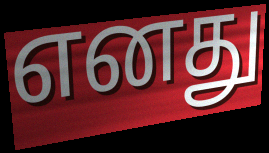
எனது